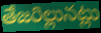
తేజరిల్లునట్లు